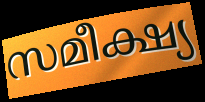
സമീക്ഷ്യ